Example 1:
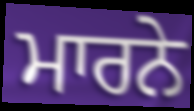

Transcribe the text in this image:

ਮਾਰਨੇ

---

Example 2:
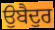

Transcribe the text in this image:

ਉਬੈਦੁਰ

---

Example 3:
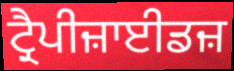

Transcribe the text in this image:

ਟ੍ਰੈਪੀਜ਼ਾਈਡਜ਼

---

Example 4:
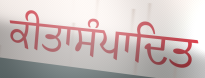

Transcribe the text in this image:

ਕੀਤਾਸੰਪਾਦਿਤ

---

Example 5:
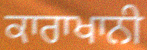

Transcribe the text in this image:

ਕਾਰਾਖਾਨੀ